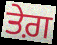
ਤੇਗ਼